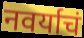
नवर्याचं